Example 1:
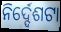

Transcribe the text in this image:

ନିର୍ଦ୍ଦେଶଟା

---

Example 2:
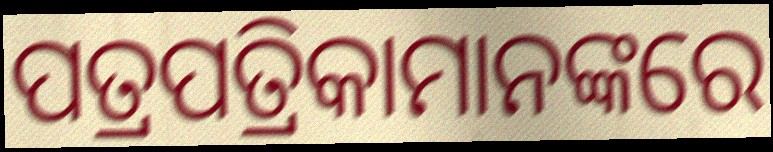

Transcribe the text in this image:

ପତ୍ରପତ୍ରିକାମାନଙ୍କରେ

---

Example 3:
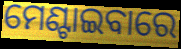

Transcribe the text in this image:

ମେଣ୍ଟାଇବାରେ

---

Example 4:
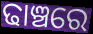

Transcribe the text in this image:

ଢାଞ୍ଚରେ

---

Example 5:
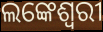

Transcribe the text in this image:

ଲଙ୍କେଶ୍ୱରୀ